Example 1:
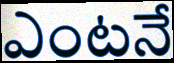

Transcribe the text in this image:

ఎంటనే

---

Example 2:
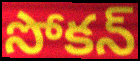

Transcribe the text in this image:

సోకన్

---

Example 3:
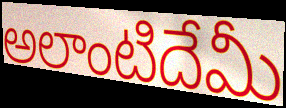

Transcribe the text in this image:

అలాంటిదేమీ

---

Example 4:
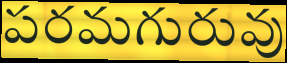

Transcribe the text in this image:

పరమగురువు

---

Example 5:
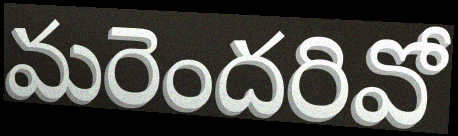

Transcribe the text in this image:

మరెందరివో